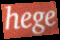
hege